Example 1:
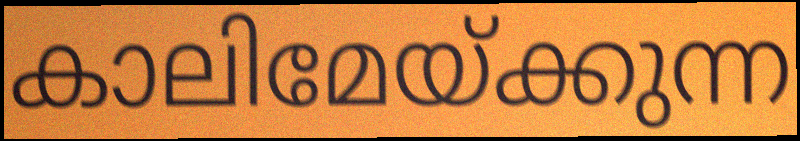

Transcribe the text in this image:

കാലിമേയ്ക്കുന്ന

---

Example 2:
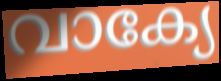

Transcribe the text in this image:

വാക്യേ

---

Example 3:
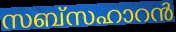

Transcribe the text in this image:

സബ്സഹാറൻ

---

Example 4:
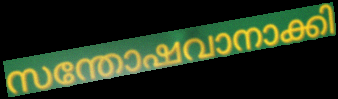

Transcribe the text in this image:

സന്തോഷവാനാക്കി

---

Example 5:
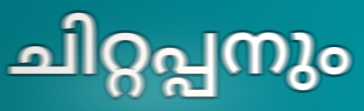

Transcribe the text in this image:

ചിറ്റപ്പനും